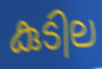
കുടില